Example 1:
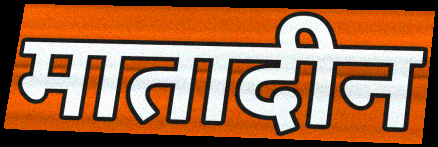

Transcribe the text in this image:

मातादीन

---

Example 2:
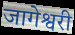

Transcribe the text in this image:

जागेश्वरी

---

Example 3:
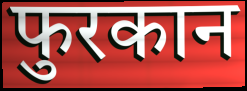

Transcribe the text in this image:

फुरकान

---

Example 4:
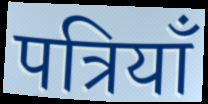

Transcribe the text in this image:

पत्रियाँ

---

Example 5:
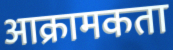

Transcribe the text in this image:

आक्रामकता